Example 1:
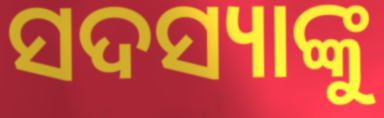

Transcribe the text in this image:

ସଦସ୍ୟାଙ୍କୁ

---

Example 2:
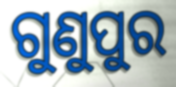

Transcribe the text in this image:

ଗୁଣୁପୁର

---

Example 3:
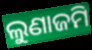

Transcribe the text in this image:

ଲୁଣାଜମି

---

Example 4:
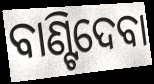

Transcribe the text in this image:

ବାଣ୍ଟିଦେବା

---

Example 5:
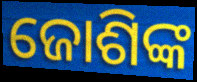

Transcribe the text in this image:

ଜୋଶିଙ୍କ